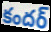
కందర్